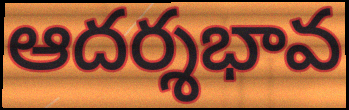
ఆదర్శభావ